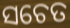
ସଚେତ